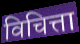
विचित्ता